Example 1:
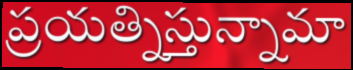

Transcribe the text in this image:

ప్రయత్నిస్తున్నామా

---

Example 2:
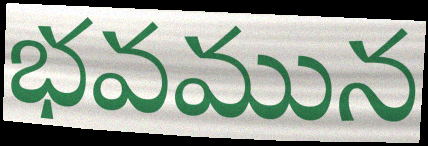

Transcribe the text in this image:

భవమున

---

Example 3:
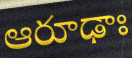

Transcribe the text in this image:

ఆరూఢాః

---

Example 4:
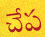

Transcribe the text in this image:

చేప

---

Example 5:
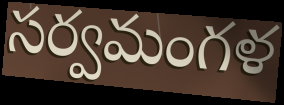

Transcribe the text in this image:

సర్వమంగళ